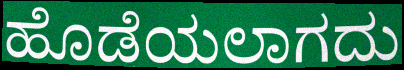
ಹೊಡೆಯಲಾಗದು